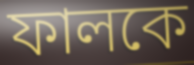
ফালকে